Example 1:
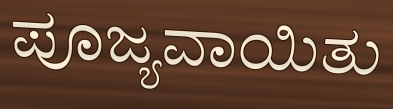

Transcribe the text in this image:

ಪೂಜ್ಯವಾಯಿತು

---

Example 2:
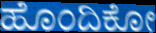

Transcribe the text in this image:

ಹೊಂದಿಕೋ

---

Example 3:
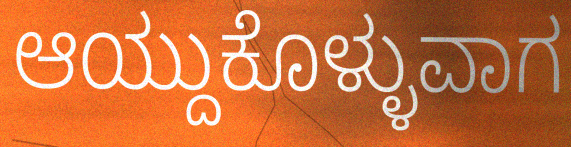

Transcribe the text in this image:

ಆಯ್ದುಕೊಳ್ಳುವಾಗ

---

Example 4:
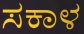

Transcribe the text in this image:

ಸಕಾಳ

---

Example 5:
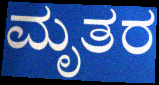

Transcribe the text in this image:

ಮೃತರ